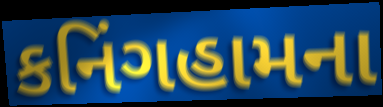
કનિંગહામના